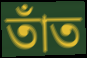
তাঁত